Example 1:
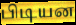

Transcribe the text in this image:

பிடியன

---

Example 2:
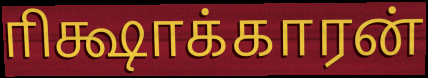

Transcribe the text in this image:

ரிக்ஷாக்காரன்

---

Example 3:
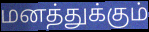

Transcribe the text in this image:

மனத்துக்கும்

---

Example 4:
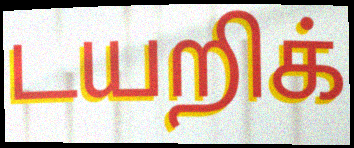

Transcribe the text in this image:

டயறிக்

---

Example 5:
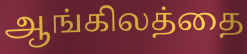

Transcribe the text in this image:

ஆங்கிலத்தை